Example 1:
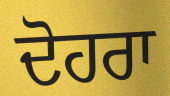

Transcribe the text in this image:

ਦੋਹਰਾ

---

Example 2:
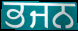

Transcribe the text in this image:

ਭਜਨ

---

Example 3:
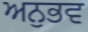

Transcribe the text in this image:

ਅਨੁਭਵ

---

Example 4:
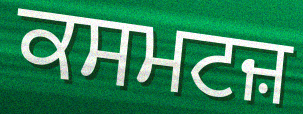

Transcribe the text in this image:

ਕਸਮਟਜ਼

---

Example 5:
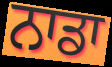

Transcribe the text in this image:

ਨਾਡਾ